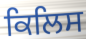
ਕਿਲਿਸ